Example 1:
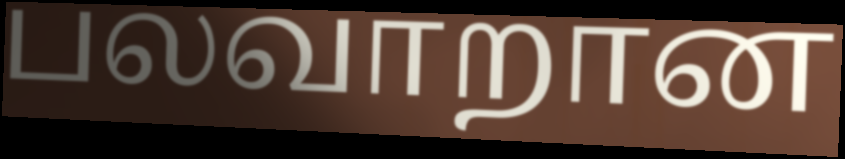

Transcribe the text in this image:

பலவாறான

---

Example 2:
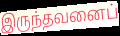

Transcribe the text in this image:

இருந்தவனைப்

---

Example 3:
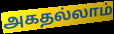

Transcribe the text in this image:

அகதல்லாம்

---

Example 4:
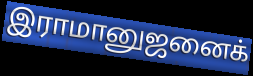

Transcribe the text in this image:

இராமானுஜனைக்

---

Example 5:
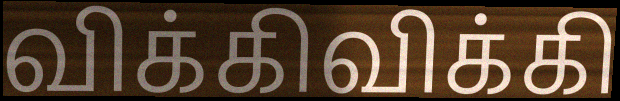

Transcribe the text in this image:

விக்கிவிக்கி